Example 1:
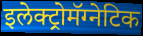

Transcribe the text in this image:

इलेक्ट्रोमॅग्नेटिक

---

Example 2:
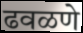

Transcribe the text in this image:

ढवळणे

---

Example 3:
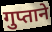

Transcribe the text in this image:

गुप्ताने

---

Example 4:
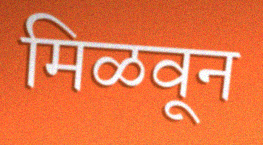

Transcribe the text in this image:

मिळवून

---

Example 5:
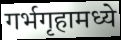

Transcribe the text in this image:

गर्भगृहामध्ये